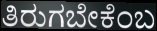
ತಿರುಗಬೇಕೆಂಬ